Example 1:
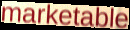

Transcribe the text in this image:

marketable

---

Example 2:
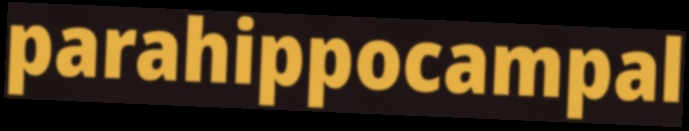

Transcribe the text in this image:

parahippocampal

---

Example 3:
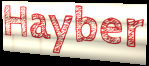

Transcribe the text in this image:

Hayber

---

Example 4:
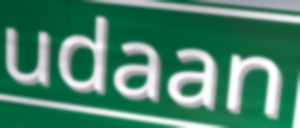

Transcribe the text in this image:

udaan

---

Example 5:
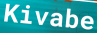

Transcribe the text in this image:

Kivabe